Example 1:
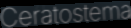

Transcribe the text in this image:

Ceratostema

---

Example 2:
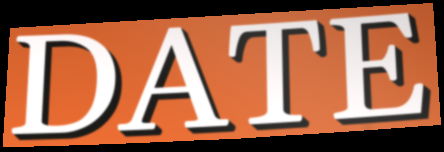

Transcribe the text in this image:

DATE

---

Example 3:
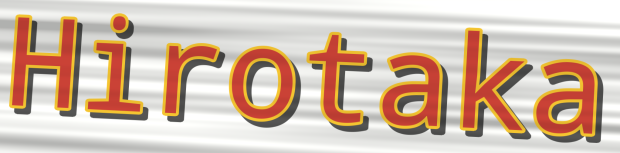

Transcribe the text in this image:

Hirotaka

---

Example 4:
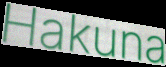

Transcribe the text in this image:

Hakuna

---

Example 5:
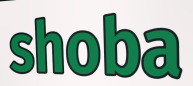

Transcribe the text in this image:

shoba